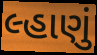
લ્હાણું